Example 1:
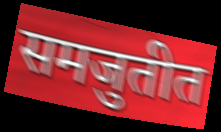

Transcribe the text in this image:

समजुतीत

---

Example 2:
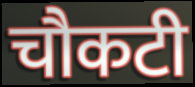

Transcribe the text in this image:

चौकटी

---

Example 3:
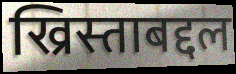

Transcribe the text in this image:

ख्रिस्ताबद्दल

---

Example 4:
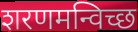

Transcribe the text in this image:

शरणमन्विच्छ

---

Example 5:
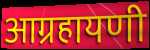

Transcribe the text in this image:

आग्रहायणी